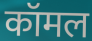
कॉमल